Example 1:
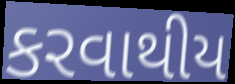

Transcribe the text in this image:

કરવાથીય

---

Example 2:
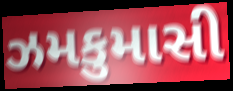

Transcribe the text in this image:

ઝમકુમાસી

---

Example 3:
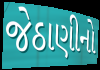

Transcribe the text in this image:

જેઠાણીનો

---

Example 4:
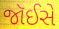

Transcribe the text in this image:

જૉઈસે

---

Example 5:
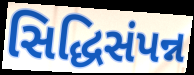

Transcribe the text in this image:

સિદ્ધિસંપન્ન